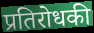
प्रतिरोधकी